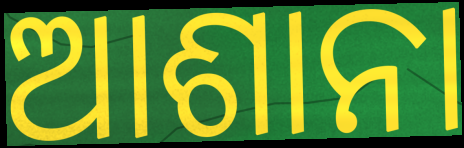
ଆଶାନା